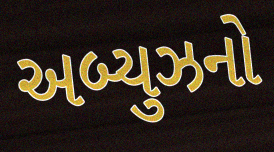
અબ્યુઝનો